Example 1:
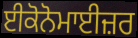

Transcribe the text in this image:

ਈਕੋਨੋਮਾਈਜ਼ਰ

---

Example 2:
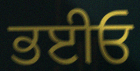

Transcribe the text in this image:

ਭਈਓ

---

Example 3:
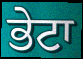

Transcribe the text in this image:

ਭੇਟਾ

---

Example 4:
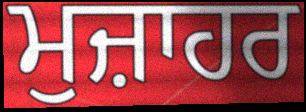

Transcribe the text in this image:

ਮੁਜ਼ਾਹਰ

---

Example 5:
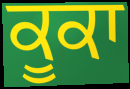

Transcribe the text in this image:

ਕੂਕਾ